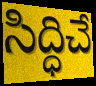
సిద్ధిచే